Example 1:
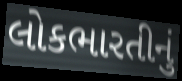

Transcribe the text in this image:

લોકભારતીનું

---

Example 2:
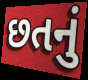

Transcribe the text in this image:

છતનું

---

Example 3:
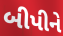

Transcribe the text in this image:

બીપીને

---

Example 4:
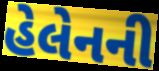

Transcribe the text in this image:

હેલેનની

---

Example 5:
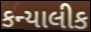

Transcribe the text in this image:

કન્યાલીક